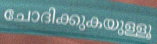
ചോദിക്കുകയുള്ളൂ